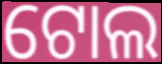
ଟୋଲ